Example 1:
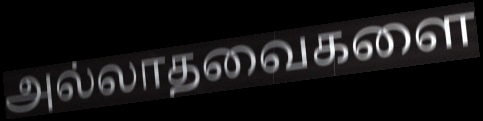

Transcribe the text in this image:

அல்லாதவைகளை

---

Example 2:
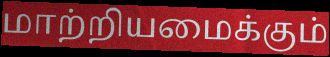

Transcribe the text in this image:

மாற்றியமைக்கும்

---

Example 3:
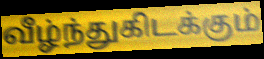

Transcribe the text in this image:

வீழ்ந்துகிடக்கும்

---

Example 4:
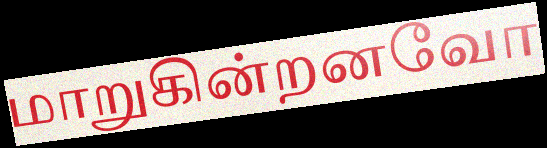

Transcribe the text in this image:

மாறுகின்றனவோ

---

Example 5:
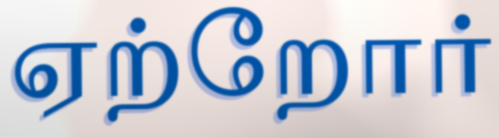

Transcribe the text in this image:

ஏற்றோர்